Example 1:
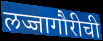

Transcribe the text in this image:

लज्जागौरीची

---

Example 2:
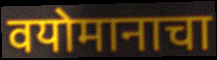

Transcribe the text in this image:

वयोमानाचा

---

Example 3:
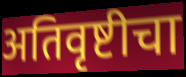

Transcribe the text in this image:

अतिवृष्टीचा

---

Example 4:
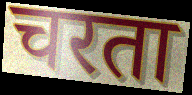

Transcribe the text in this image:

चरता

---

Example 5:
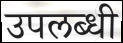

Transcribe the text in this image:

उपलब्धी